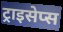
ट्राइसेप्स